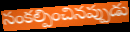
సంకల్పించినప్పుడు